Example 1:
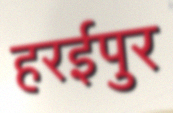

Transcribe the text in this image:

हरईपुर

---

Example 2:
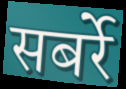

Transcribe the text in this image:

सबर्रे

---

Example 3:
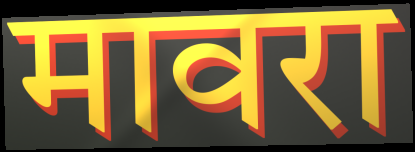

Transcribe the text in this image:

मावरा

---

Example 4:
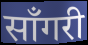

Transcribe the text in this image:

साँगरी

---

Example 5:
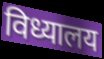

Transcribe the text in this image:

विध्यालय